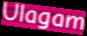
Ulagam